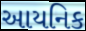
આયનિક